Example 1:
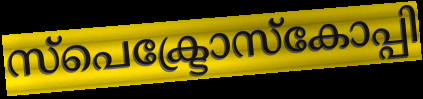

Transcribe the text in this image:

സ്പെക്ട്രോസ്കോപ്പി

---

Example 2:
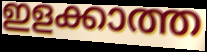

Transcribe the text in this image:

ഇളക്കാത്ത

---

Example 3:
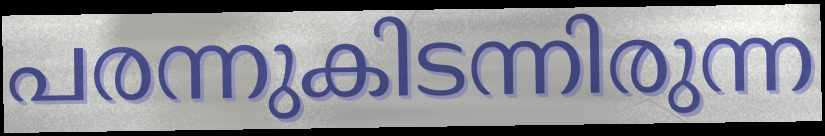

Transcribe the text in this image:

പരന്നുകിടന്നിരുന്ന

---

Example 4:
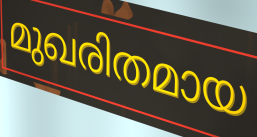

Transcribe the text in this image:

മുഖരിതമായ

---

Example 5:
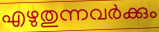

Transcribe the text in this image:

എഴുതുന്നവർക്കും